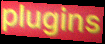
plugins